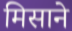
मिसाने